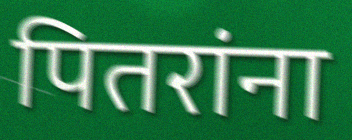
पितरांना